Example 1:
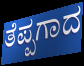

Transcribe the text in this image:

ತೆಪ್ಪಗಾದ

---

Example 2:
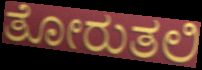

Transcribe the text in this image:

ತೋರುತಲಿ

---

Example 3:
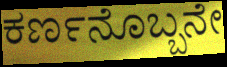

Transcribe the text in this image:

ಕರ್ಣನೊಬ್ಬನೇ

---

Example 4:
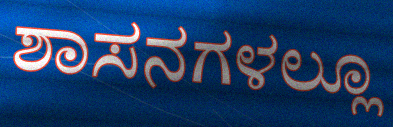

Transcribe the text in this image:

ಶಾಸನಗಳಲ್ಲೂ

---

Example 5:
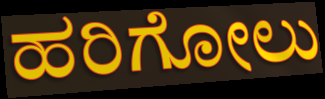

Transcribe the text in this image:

ಹರಿಗೋಲು